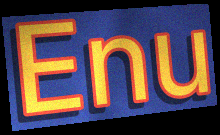
Enu